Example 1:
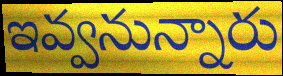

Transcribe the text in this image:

ఇవ్వనున్నారు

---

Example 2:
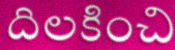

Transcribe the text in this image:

దిలకించి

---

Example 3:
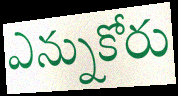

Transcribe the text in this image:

ఎన్నుకోరు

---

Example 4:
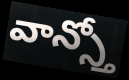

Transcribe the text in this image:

వాన్స్తో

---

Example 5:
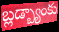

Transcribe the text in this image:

బ్లడ్బ్యాంకు